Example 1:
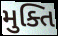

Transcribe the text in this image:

મુક્તિ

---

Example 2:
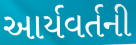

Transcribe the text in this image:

આર્યવર્તની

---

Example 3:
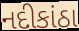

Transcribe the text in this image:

નદીકાંઠા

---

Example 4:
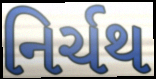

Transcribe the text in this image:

નિર્ચથ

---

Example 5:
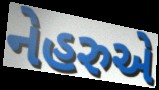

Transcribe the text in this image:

નેહરુએ